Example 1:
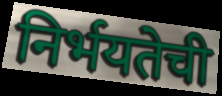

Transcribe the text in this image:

निर्भयतेची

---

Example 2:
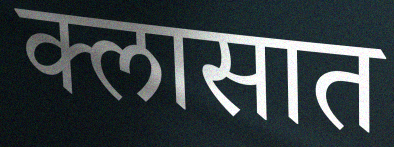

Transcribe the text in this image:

क्लासात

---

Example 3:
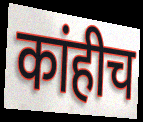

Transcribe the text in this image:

कांहीच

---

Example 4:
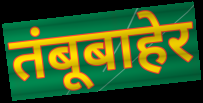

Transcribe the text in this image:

तंबूबाहेर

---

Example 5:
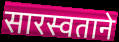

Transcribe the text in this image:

सारस्वताने